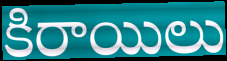
కిరాయిలు